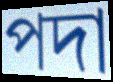
পদা